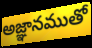
అజ్ఞానముతో